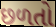
છળતો